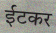
ईटकर